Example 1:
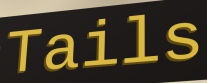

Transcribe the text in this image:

Tails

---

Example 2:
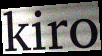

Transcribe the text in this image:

kiro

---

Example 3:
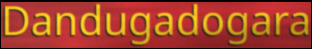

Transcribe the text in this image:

Dandugadogara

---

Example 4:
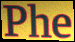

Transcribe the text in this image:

Phe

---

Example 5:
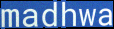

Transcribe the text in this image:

madhwa